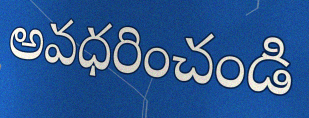
అవధరించండి